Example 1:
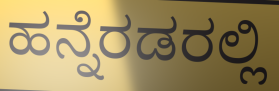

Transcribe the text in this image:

ಹನ್ನೆರಡರಲ್ಲಿ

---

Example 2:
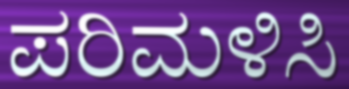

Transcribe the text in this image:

ಪರಿಮಳಿಸಿ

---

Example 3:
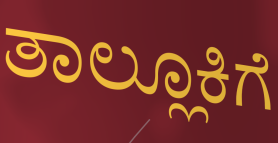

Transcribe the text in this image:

ತಾಲ್ಲೂಕಿಗೆ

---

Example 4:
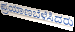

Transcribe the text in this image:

ಪ್ರಯಾಣಬೆಳೆಸಿದರು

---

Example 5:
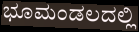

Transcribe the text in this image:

ಭೂಮಂಡಲದಲ್ಲಿ